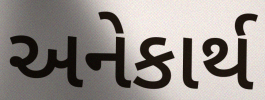
અનેકાર્થ